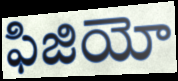
ఫిజియో